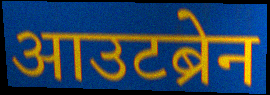
आउटब्रेन